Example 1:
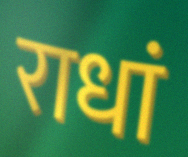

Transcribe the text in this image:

राधां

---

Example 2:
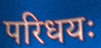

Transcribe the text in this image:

परिधयः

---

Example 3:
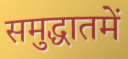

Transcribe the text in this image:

समुद्धातमें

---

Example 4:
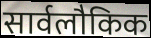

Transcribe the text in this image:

सार्वलौकिक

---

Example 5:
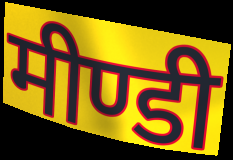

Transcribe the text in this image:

मीण्‍डी